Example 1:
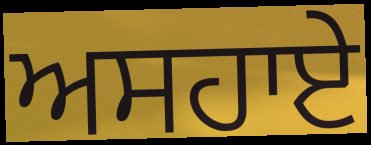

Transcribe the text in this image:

ਅਸਹਾਏ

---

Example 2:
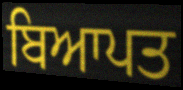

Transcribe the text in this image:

ਬਿਆਪਤ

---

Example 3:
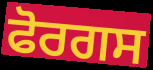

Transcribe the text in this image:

ਫੋਰਗਸ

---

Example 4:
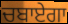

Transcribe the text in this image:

ਚਬਾਏਗਾ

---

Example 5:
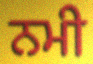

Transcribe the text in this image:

ਨਮੀ